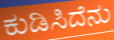
ಕುಡಿಸಿದೆನು